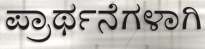
ಪ್ರಾರ್ಥನೆಗಳಾಗಿ